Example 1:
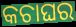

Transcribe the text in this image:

କଚାଘର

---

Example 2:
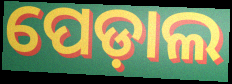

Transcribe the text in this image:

ପେଡ଼ାଲ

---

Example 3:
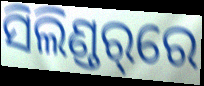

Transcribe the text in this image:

ସିଲିଣ୍ଡର୍‌ରେ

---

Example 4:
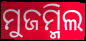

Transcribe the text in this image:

ମୁଜମ୍ମିଲ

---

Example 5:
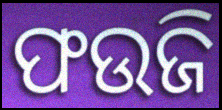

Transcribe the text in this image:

ଫଉଜି